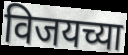
विजयच्या